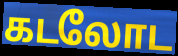
கடலோட